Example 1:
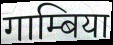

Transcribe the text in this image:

गाम्बिया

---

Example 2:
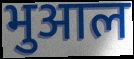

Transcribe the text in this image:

भुआल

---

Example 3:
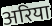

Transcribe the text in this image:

अरिया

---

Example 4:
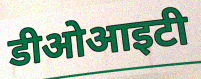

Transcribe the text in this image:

डीओआइटी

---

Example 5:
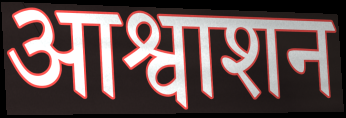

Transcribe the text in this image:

आश्वाशन